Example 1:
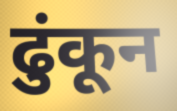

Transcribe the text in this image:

ढुंकून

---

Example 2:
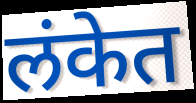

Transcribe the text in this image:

लंकेत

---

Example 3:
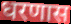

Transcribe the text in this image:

धरणास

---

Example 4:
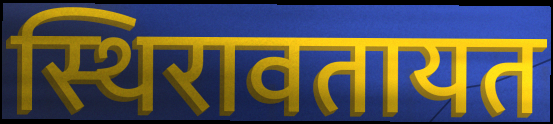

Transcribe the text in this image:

स्थिरावतायत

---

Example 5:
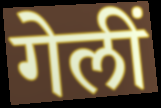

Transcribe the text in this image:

गेलीं